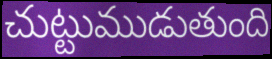
చుట్టుముడుతుంది